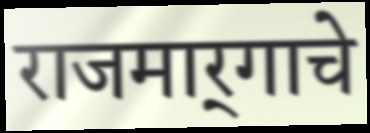
राजमार्गाचे